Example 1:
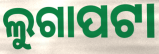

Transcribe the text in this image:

ଲୁଗାପଟା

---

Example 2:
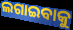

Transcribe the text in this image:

ଲଗାଇବାକୁ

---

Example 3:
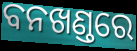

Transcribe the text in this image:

ବନଖଣ୍ଡରେ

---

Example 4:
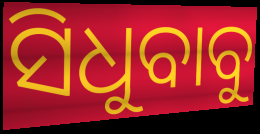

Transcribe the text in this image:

ସିଧୁବାବୁ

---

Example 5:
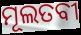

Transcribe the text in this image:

ମୂଲତବୀ